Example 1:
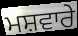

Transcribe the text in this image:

ਮਸ਼ਵਾਰੇ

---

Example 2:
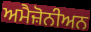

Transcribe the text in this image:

ਅਮੈਜ਼ੋਨੀਅਨ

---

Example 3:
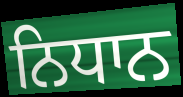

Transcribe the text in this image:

ਨਿਧਾਨ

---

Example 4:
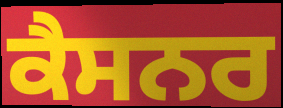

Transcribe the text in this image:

ਕੈਸਨਰ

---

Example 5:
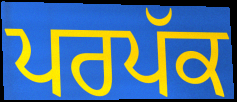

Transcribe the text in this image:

ਪਰਪੱਕ